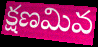
క్షణమివ